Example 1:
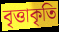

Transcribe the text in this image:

বৃত্তাকৃতি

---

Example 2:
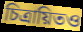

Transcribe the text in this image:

চিত্রায়িতও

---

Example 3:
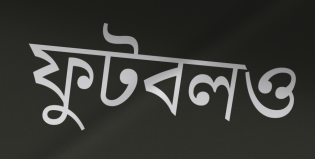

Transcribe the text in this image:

ফুটবলও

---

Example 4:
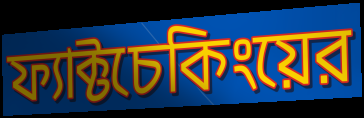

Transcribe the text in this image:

ফ্যাক্টচেকিংয়ের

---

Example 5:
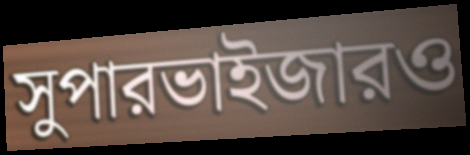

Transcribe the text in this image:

সুপারভাইজারও